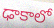
ఢాకాలో